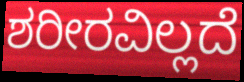
ಶರೀರವಿಲ್ಲದೆ